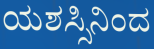
ಯಶಸ್ಸಿನಿಂದ